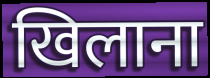
खिलाना